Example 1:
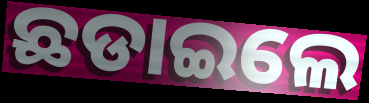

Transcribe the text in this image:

ଛଡାଇଲେ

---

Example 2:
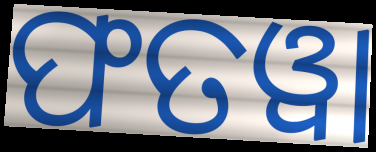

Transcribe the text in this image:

ଫତୱା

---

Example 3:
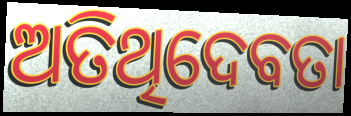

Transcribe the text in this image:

ଅତିଥିଦେବତା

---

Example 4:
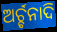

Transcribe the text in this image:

ଅର୍ଚ୍ଚନାଦି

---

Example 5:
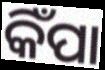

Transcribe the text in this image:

କିଁପା